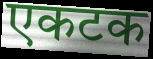
एकटक